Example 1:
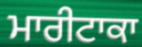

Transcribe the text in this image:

ਮਾਰੀਟਾਕਾ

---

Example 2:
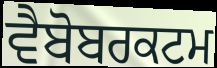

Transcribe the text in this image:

ਵੈਬੋਬਰਕਟਮ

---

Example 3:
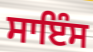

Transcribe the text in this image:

ਸਾਇੰਸ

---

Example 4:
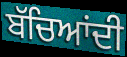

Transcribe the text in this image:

ਬੱਚਿਆਂਦੀ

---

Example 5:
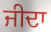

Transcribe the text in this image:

ਜੀਦਾ